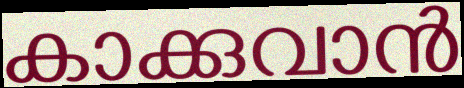
കാക്കുവാൻ